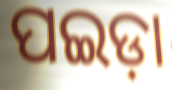
ପଇଡ଼ା